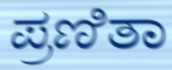
ಪ್ರಣಿತಾ